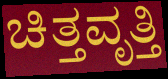
ಚಿತ್ತವೃತ್ತಿ